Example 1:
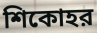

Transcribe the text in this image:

শিকোহর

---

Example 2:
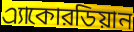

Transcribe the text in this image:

এ্যাকোরডিয়ান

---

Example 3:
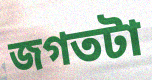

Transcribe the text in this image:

জগতটা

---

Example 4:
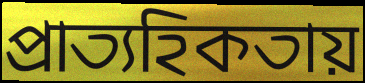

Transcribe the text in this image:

প্রাত্যহিকতায়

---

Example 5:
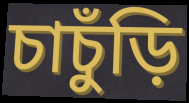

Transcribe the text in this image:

চাচুঁড়ি